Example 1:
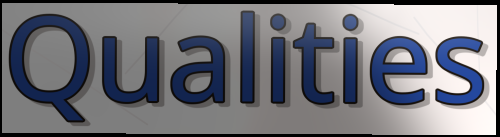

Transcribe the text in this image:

Qualities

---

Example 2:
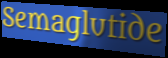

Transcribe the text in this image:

Semaglutide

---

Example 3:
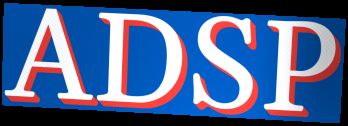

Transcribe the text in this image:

ADSP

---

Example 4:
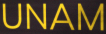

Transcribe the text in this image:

UNAM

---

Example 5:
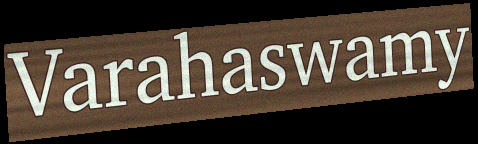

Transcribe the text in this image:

Varahaswamy